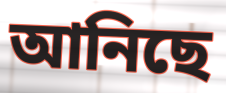
আনিছে